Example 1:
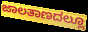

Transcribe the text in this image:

ಜಾಲತಾಣದಲ್ಲೂ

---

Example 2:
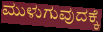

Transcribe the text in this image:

ಮುಳುಗುವುದಕ್ಕೆ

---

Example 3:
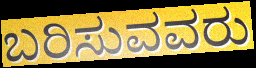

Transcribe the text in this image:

ಬರಿಸುವವರು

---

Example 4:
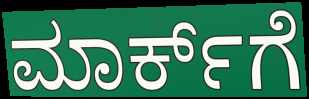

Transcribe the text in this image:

ಮಾರ್ಕ್‌ಗೆ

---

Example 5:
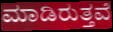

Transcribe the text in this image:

ಮಾಡಿರುತ್ತವೆ